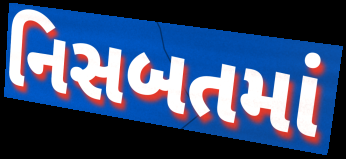
નિસબતમાં